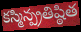
కస్మిన్ప్రతిష్ఠిత